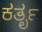
ಕರ್ತೃ